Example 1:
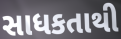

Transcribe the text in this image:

સાધકતાથી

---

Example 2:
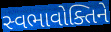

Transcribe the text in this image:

સ્વભાવોક્તિને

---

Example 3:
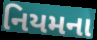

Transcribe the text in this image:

નિયમના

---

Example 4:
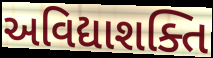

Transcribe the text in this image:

અવિદ્યાશક્તિ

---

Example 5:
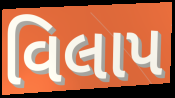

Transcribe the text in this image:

વિલાપ